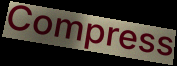
Compress